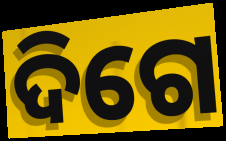
ଦିଗେ